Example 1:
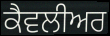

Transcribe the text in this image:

ਕੈਵਲੀਅਰ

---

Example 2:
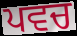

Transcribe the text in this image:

ਪਵਚ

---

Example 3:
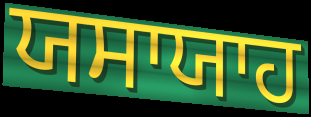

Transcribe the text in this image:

ਯਸਾਯਾਹ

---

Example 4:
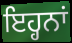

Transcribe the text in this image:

ਇਹ੍ਹਨਾਂ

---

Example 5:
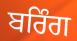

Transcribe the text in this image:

ਬਰਿੰਗ